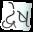
દ્વેષ